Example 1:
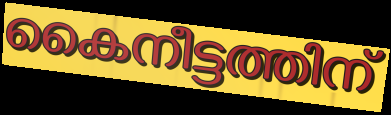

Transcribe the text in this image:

കൈനീട്ടത്തിന്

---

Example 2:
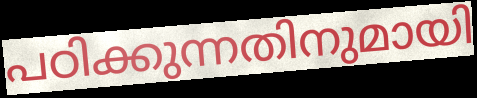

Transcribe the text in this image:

പഠിക്കുന്നതിനുമായി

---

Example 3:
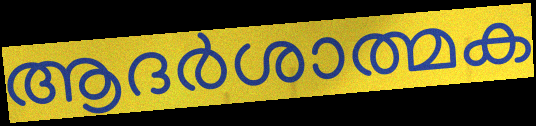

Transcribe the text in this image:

ആദർശാത്മക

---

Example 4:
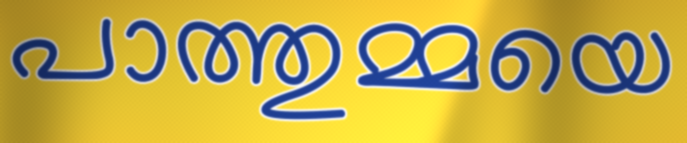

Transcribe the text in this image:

പാത്തുമ്മയെ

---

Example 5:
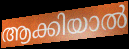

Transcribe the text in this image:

ആക്കിയാൽ